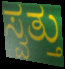
ಸ್ವತ್ತು